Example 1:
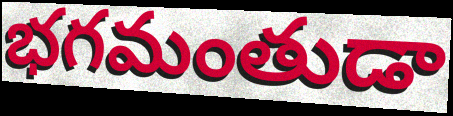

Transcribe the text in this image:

భగమంతుడా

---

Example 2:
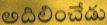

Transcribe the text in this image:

అదిలించేడు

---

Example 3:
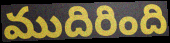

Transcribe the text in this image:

ముదిరింది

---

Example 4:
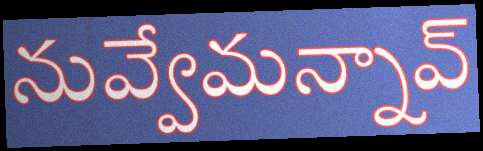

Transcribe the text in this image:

నువ్వేమన్నావ్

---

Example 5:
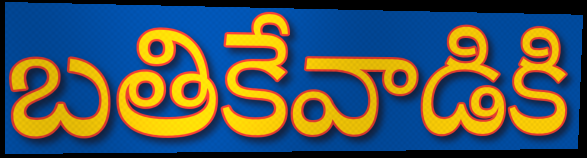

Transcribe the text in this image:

బతికేవాడికి